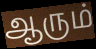
ஆரும்